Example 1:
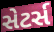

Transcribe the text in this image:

સેટર્સ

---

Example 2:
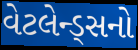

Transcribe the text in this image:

વેટલેન્ડ્સનો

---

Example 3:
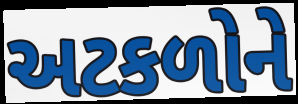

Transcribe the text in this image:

અટકળોને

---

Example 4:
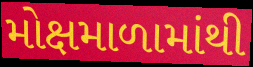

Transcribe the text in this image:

મોક્ષમાળામાંથી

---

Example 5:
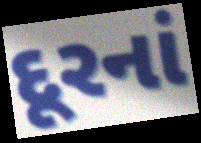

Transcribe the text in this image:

દૂરનાં